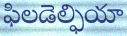
ఫిలడెల్ఫియా